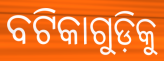
ବଟିକାଗୁଡ଼ିକୁ